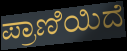
ಪ್ರಾಣಿಯಿದೆ